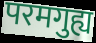
परमगुह्य